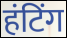
हंटिंग